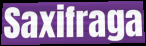
Saxifraga